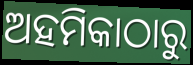
ଅହମିକାଠାରୁ